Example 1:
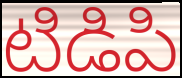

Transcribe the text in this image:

టిడిపి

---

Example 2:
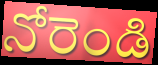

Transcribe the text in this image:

నోరెండి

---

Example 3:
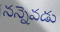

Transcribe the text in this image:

నన్నెవడు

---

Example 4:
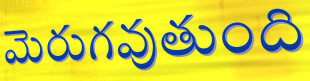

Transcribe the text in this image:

మెరుగవుతుంది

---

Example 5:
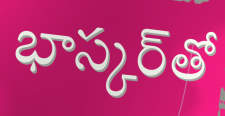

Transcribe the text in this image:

భాస్కర్‌తో